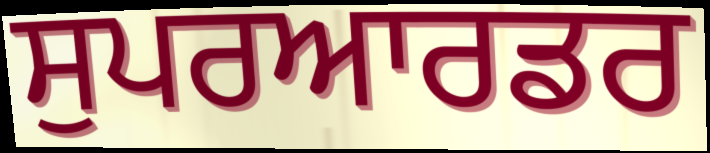
ਸੁਪਰਆਰਡਰ